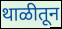
थाळीतून